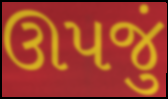
ઊપજું